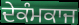
ਦੇਕੰਮਕਾਜ